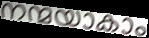
നന്മയാകാം